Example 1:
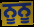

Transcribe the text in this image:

ਨੂਨੂ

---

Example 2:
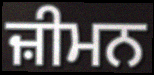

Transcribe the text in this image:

ਜ਼ੀਮਨ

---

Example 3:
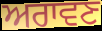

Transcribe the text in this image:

ਅਰਾਵਣ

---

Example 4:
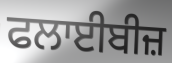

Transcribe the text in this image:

ਫਲਾਈਬੀਜ਼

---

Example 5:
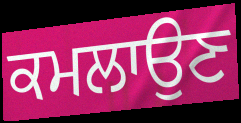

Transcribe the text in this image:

ਕਮਲਾਉਣ